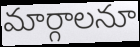
మార్గాలనూ